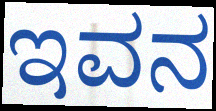
ಇವನ